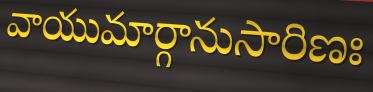
వాయుమార్గానుసారిణః